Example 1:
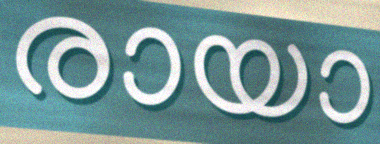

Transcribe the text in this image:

രായാ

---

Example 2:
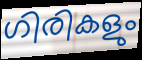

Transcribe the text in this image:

ഗിരികളും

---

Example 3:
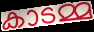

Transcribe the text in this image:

കാടമ്മ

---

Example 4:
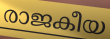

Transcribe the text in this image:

രാജകീയ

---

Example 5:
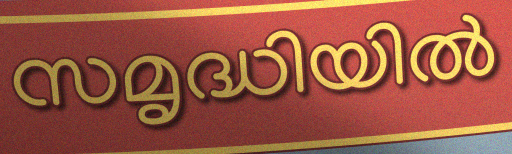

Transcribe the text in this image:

സമൃദ്ധിയിൽ